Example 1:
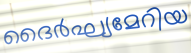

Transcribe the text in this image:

ദൈർഘ്യമേറിയ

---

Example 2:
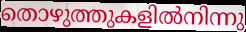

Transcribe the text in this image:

തൊഴുത്തുകളിൽനിന്നു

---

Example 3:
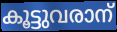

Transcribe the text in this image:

കൂട്ടുവരാന്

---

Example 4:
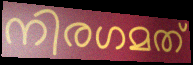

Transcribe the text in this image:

നിരഗമത്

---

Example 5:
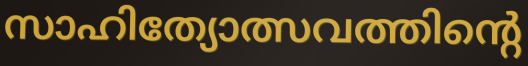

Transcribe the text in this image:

സാഹിത്യോത്സവത്തിന്റെ